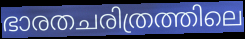
ഭാരതചരിത്രത്തിലെ